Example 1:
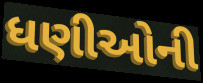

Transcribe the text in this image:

ધણીઓની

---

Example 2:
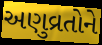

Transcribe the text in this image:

અણુવ્રતોને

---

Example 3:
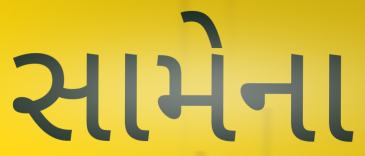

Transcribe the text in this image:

સામેના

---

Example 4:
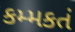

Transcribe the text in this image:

કમ્મકતં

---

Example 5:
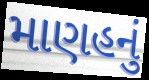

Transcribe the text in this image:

માણહનું